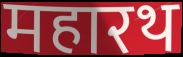
महारथ